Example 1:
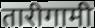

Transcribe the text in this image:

तारीगामी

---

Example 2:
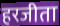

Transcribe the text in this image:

हरजीता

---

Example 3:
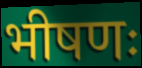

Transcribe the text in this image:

भीषणः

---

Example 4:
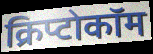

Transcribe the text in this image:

क्रिप्टोकॉम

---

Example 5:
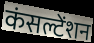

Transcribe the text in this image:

कंसल्टेंशन